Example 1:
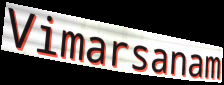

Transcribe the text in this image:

Vimarsanam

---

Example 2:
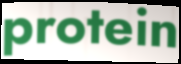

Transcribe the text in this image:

protein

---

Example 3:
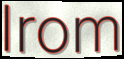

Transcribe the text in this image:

Irom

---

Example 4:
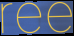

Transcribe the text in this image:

ree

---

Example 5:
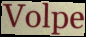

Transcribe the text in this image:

Volpe